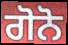
ਗੋਨੋ